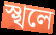
স্খলে